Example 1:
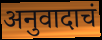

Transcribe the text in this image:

अनुवादाचं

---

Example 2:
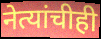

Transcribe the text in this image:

नेत्यांचीही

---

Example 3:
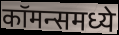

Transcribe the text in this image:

कॉमन्समध्ये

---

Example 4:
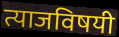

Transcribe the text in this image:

त्याजविषयी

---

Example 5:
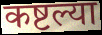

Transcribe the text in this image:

कष्टल्या